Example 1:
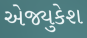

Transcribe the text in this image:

એજ્યુકેશ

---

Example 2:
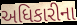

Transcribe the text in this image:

અધિકારીના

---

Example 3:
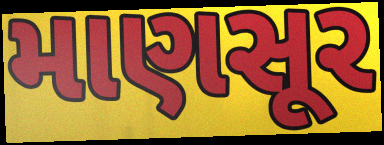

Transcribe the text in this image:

માણસૂર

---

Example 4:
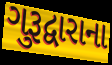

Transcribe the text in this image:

ગુરૂદ્વારાના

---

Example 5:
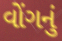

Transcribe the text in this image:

વોંગનું